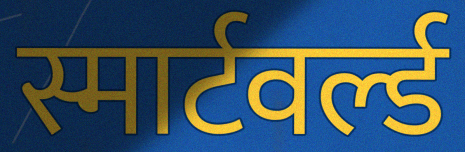
स्मार्टवर्ल्ड